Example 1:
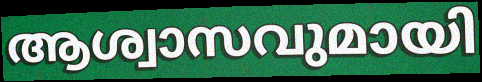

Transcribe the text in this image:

ആശ്വാസവുമായി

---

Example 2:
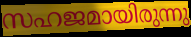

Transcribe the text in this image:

സഹജമായിരുന്നു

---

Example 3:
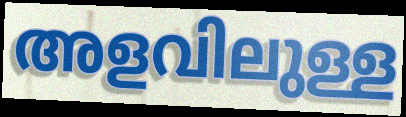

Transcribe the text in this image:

അളവിലുള്ള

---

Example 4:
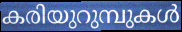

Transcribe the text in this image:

കരിയുറുമ്പുകൾ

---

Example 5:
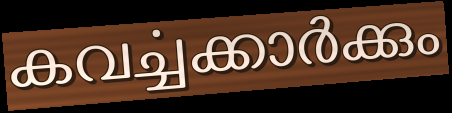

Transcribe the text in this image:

കവൎച്ചക്കാർക്കും